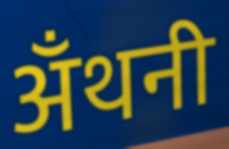
अँथनी